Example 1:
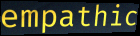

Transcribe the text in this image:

empathic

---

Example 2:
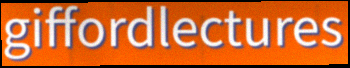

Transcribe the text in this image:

giffordlectures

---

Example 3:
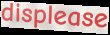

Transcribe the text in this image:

displease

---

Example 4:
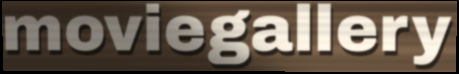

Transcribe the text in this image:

moviegallery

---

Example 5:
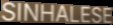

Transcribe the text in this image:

SINHALESE